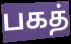
பகத்